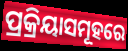
ପ୍ରକ୍ରିୟାସମୂହରେ